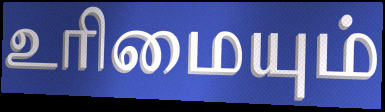
உரிமையும்